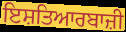
ਇਸ਼ਤਿਆਰਬਾਜ਼ੀ